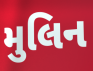
મુલિન